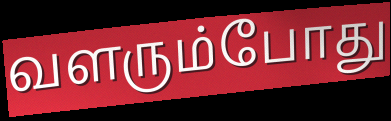
வளரும்போது